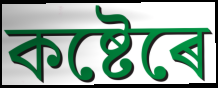
কষ্টেৰে